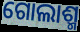
ଗୋଲାଶ୍ମ